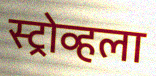
स्ट्रोव्हला